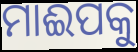
ମାଈପକୁ